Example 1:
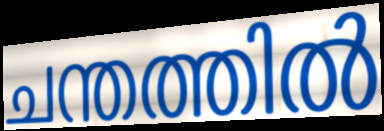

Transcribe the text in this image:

ചന്തത്തിൽ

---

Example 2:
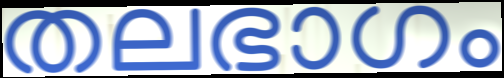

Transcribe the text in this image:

തലഭാഗം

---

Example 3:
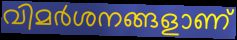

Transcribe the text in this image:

വിമർശനങ്ങളാണ്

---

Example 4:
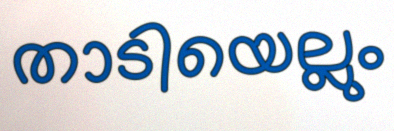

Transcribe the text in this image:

താടിയെല്ലും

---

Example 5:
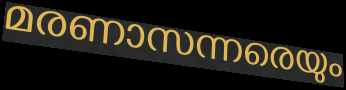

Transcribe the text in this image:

മരണാസന്നരെയും